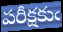
పరీక్షకుఁ